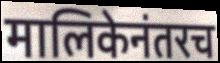
मालिकेनंतरच